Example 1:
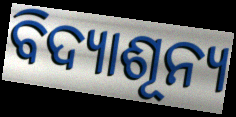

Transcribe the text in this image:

ବିଦ୍ୟାଶୂନ୍ୟ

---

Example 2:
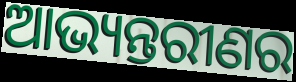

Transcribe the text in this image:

ଆଭ୍ୟନ୍ତରୀଣର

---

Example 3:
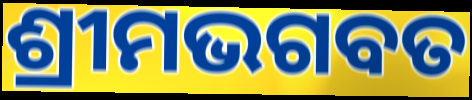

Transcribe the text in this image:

ଶ୍ରୀମଭଗବତ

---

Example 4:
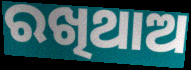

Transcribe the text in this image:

ରଖିଥାଅ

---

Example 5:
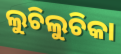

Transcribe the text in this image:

ଲୁଚିଲୁଚିକା